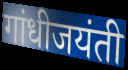
गांधीजयंती